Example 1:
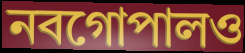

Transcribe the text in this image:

নবগোপালও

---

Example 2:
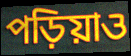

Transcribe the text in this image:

পড়িয়াও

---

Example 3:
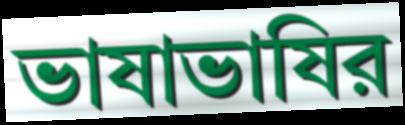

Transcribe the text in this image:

ভাষাভাষির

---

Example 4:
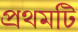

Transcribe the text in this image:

প্রথমটি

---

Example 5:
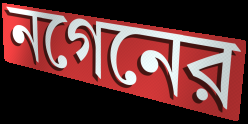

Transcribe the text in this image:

নগেনের